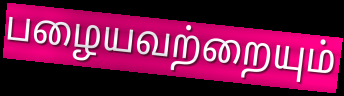
பழையவற்றையும்